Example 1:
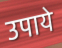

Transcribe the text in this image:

उपाये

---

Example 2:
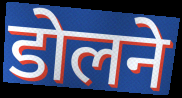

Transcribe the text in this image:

डोलने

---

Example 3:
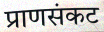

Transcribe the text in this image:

प्राणसंकट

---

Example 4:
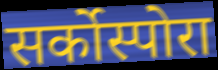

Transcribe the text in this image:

सर्कोस्पोरा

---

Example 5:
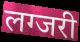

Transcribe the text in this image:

लग्‍जरी